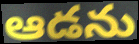
ఆడను